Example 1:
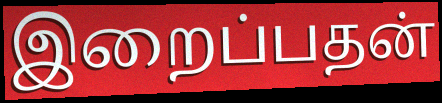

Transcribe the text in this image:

இறைப்பதன்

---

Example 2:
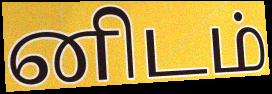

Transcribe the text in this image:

னிடம்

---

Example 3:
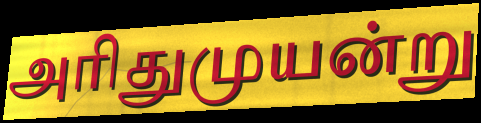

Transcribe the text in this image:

அரிதுமுயன்று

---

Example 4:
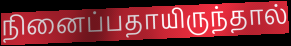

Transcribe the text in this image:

நினைப்பதாயிருந்தால்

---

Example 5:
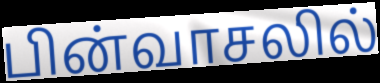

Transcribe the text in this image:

பின்வாசலில்